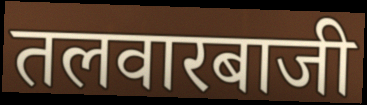
तलवारबाजी